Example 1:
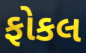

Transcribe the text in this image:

ફોકલ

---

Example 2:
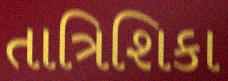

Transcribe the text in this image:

તાત્રિશિકા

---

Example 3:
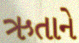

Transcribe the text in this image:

ઋતાને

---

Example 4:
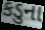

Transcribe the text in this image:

કડુના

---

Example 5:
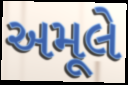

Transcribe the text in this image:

અમૂલે